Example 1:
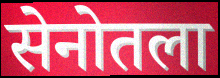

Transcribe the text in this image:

सेनोतला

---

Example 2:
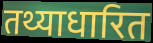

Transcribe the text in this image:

तथ्याधारित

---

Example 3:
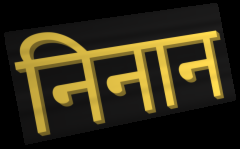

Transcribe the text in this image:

निनान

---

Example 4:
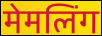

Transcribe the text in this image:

मेमलिंग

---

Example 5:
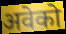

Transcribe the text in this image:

अवेको